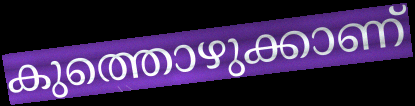
കുത്തൊഴുക്കാണ്